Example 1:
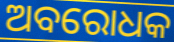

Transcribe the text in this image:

ଅବରୋଧକ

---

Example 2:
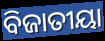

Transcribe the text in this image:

ବିଜାତୀୟା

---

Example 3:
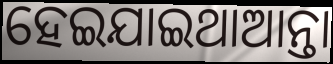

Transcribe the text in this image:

ହେଇଯାଇଥାଆନ୍ତା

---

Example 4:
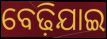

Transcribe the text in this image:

ବେଢ଼ିଯାଇ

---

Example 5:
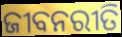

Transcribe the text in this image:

ଜୀବନରୀତି